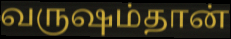
வருஷம்தான்